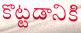
కొట్టడానికి